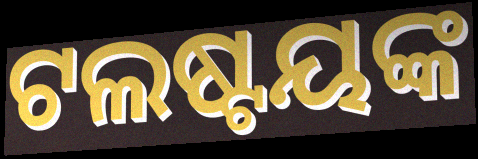
ଟଲଷ୍ଟୟଙ୍କ